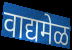
वाद्यमेळ